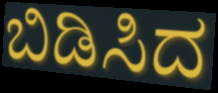
ಬಿಡಿಸಿದ